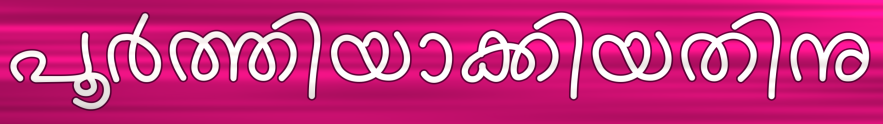
പൂർത്തിയാക്കിയതിനു